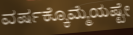
ವರ್ಷಕ್ಕೊಮ್ಮೆಯಷ್ಟೇ